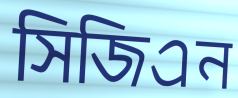
সিজিএন